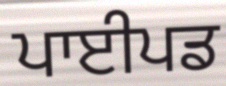
ਪਾਈਪਡ